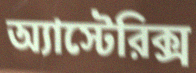
অ্যাস্টেরিক্স